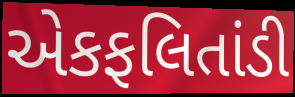
એકફલિતાંડી